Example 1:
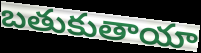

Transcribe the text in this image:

బతుకుతాయా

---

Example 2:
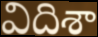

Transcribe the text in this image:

విదిశా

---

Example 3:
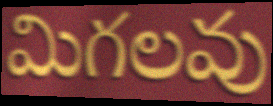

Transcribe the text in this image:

మిగలవు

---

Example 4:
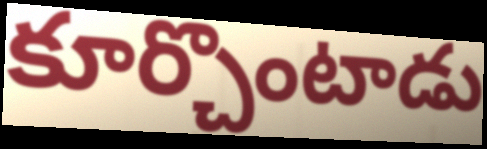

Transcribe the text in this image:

కూర్చొంటాడు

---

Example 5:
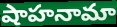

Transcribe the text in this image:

షాహనామా